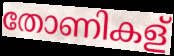
തോണികള്